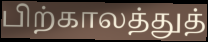
பிற்காலத்துத்